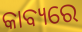
କାବ୍ଯରେ